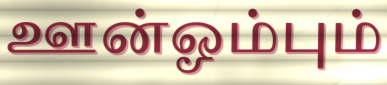
ஊன்ஓம்பும்